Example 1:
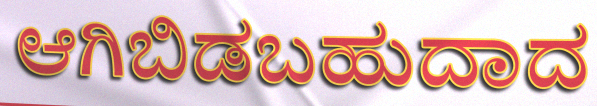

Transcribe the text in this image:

ಆಗಿಬಿಡಬಹುದಾದ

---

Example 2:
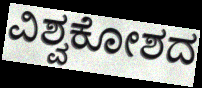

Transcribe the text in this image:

ವಿಶ್ವಕೋಶದ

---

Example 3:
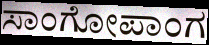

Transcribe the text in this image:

ಸಾಂಗೋಪಾಂಗ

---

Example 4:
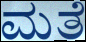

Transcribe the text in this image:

ಮತೆ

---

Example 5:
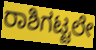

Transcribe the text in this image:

ರಾಶಿಗಟ್ಟಲೇ